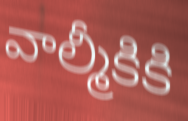
వాల్మీకికి